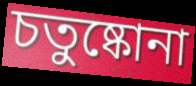
চতুষ্কোনা